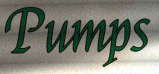
Pumps